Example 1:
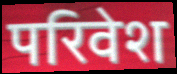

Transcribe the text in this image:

परिवेश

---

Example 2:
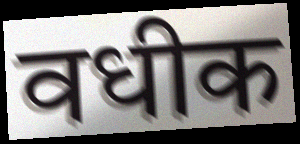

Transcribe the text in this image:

वधीक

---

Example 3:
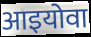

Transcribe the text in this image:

आइयोवा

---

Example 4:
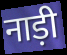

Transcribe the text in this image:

नाड़ी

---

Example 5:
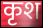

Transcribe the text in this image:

कृश